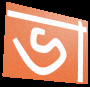
ভা